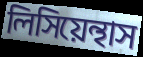
লিসিয়েন্থাস